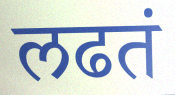
लढतं